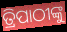
ତ୍ରିପାଠୀଙ୍କୁ